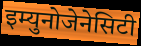
इम्युनोजेनेसिटी